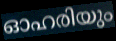
ഓഹരിയും